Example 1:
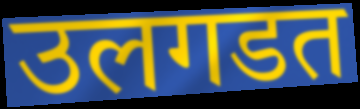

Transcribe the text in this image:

उलगडत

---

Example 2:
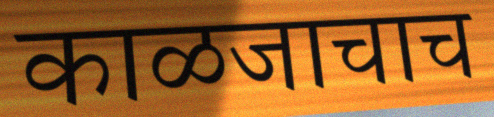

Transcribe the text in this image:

काळजाचाच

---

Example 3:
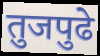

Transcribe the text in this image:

तुजपुढे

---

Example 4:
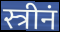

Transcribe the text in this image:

स्त्रीनं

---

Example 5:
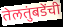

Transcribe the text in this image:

तेलतुंबडेंची